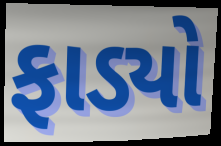
ફાડ્યો